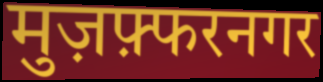
मुज़फ़्फरनगर